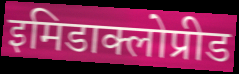
इमिडाक्लोप्रीड